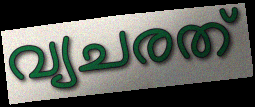
വ്യചരത്